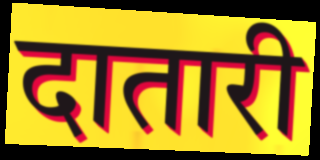
दातारी